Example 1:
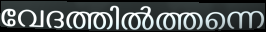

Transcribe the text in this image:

വേദത്തിൽത്തന്നെ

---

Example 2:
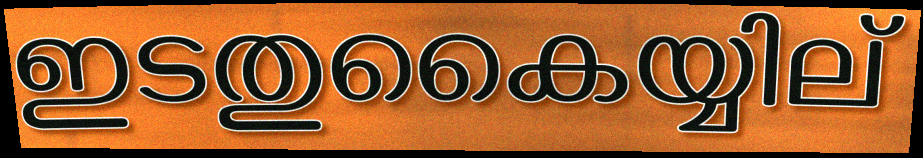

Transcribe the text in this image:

ഇടതുകൈയ്യില്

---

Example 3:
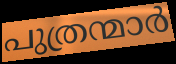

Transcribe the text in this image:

പുത്രന്മാർ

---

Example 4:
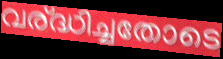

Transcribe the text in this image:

വര്ദ്ധിച്ചതോടെ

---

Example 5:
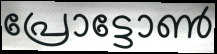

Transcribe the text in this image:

പ്രോട്ടോൺ